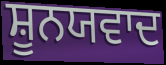
ਸ਼ੂਨਯਵਾਦ